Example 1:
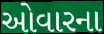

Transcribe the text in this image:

ઓવારના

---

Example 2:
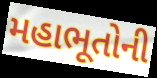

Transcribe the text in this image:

મહાભૂતોની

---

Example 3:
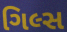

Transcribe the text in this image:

ગિલ્સ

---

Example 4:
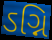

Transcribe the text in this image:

ઽગ્નિ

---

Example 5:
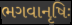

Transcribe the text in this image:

ભગવાનૃષિઃ